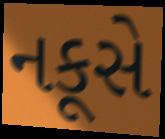
નકૂસે